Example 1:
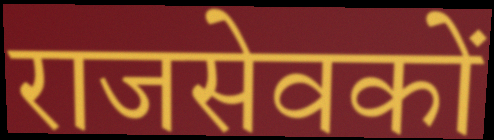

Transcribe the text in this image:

राजसेवकों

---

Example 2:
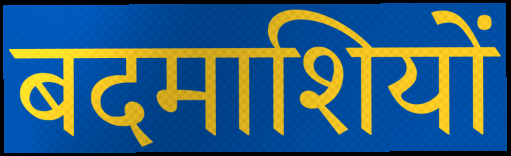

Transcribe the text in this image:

बदमाशियों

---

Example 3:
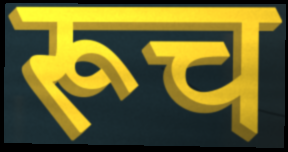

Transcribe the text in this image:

रूच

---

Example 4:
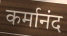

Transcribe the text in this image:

कर्मानंद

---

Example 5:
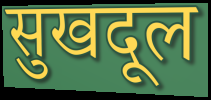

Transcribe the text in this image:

सुखदूल